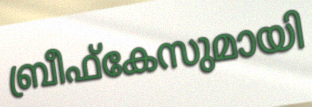
ബ്രീഫ്കേസുമായി